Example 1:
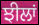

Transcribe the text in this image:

ਝੀਲਾਂ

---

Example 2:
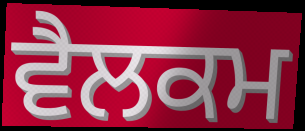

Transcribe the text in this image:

ਵੈਲਕਮ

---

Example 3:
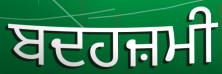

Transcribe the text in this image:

ਬਦਹਜ਼ਮੀ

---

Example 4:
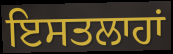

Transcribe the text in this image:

ਇਸਤਲਾਹਾਂ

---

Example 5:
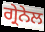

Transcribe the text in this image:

ਗ੍ਰੇਨੇਲ